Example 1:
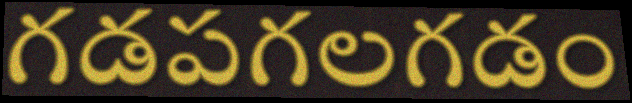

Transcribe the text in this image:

గడపగలగడం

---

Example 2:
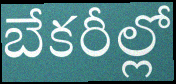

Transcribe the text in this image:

బేకరీల్లో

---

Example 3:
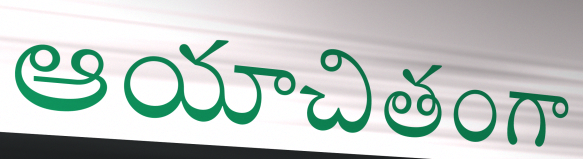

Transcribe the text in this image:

ఆయాచితంగా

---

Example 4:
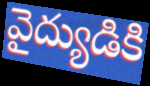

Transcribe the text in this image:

వైద్యుడికి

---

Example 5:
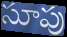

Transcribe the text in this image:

సూపు